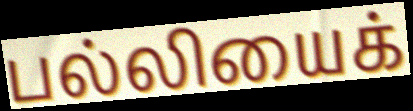
பல்லியைக்